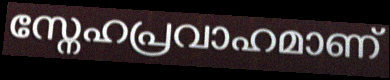
സ്നേഹപ്രവാഹമാണ്